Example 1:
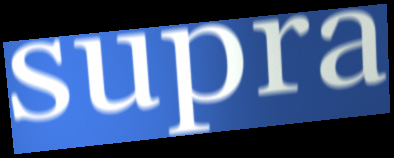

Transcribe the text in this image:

supra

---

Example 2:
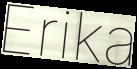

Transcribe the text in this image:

Erika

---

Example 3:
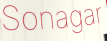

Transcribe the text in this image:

Sonagar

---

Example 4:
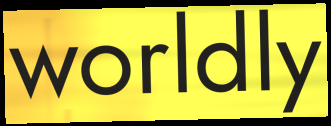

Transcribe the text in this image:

worldly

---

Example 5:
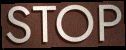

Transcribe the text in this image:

STOP